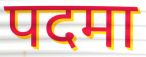
पदमा